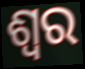
ଶ୍ୱର